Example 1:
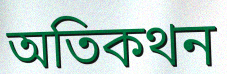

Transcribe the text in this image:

অতিকথন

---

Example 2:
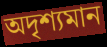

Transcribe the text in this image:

অদৃশ্যমান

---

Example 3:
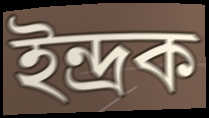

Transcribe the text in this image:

ইন্দ্ৰক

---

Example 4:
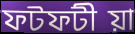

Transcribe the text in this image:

ফটফটীয়া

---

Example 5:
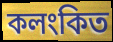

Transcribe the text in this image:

কলংকিত